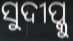
ସୁଦୀପ୍କୁ